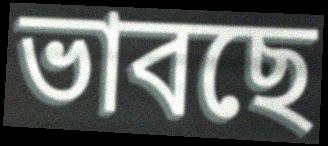
ভাবছে